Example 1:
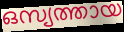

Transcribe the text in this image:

ഒസ്യത്തായ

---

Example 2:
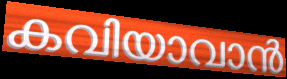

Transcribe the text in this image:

കവിയാവാൻ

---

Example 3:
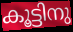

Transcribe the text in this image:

കൂട്ടിനു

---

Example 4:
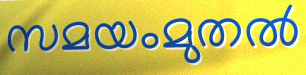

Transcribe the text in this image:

സമയംമുതൽ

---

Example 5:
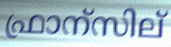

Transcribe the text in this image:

ഫ്രാന്സില്